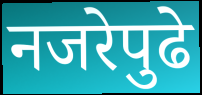
नजरेपुढे